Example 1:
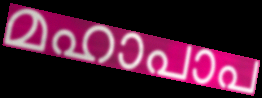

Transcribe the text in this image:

മഹാപാപ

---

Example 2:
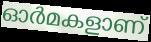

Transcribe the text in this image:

ഓർമകളാണ്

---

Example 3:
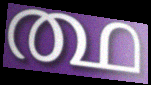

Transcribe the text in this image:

ത്ഥ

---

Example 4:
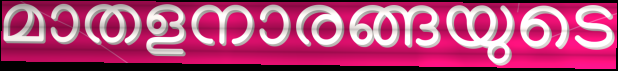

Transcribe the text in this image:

മാതളനാരങ്ങയുടെ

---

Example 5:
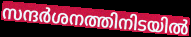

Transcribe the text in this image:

സന്ദർശനത്തിനിടയിൽ